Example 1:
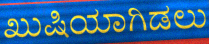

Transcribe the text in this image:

ಖುಷಿಯಾಗಿಡಲು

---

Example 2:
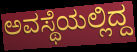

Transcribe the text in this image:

ಅವಸ್ಥೆಯಲ್ಲಿದ್ದ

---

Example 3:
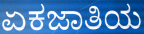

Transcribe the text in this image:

ಏಕಜಾತಿಯ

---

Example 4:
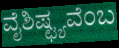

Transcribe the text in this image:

ವೈಶಿಷ್ಟ್ಯವೆಂಬ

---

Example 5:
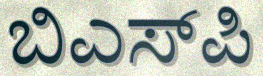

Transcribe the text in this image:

ಬಿಎಸ್‌ಪಿ